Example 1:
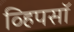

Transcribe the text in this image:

व्हिपसॉ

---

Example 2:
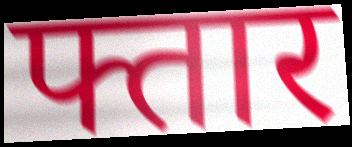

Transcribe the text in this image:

फ्तार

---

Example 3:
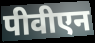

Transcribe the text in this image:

पीवीएन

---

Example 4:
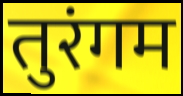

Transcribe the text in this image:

तुरंगम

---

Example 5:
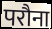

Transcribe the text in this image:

परौना